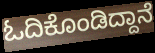
ಓದಿಕೊಂಡಿದ್ದಾನೆ